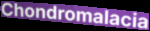
Chondromalacia